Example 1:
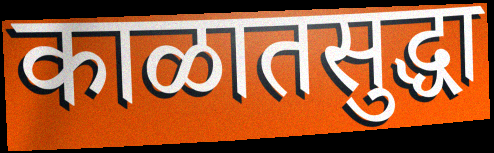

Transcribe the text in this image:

काळातसुद्धा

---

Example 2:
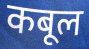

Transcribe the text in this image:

कबूल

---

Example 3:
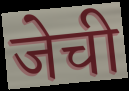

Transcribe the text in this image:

जेची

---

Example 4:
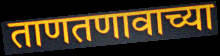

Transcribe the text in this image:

ताणतणावाच्या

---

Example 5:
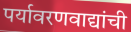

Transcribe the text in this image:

पर्यावरणवाद्यांची